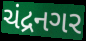
ચંદ્રનગર